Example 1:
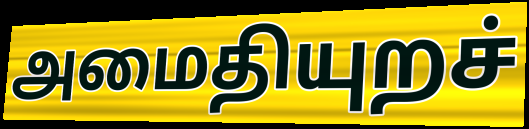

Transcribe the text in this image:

அமைதியுறச்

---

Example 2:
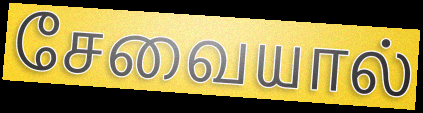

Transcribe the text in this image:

சேவையால்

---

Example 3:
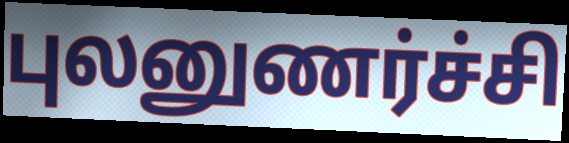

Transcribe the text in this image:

புலனுணர்ச்சி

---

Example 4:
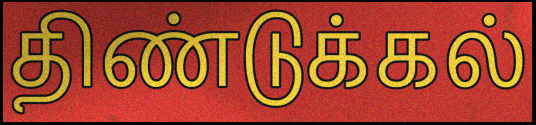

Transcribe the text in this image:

திண்டுக்கல்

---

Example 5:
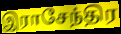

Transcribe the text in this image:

இராசேந்திர